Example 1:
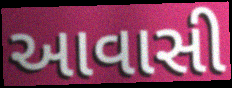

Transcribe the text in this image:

આવાસી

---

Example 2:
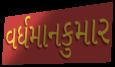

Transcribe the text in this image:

વર્ધમાનકુમાર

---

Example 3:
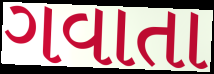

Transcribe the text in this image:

ગવાતા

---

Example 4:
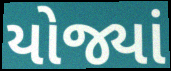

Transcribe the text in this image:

યોજ્યાં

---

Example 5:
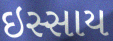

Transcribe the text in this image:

ઇસ્સાય